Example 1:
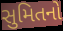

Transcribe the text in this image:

સુમિતનો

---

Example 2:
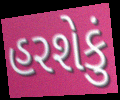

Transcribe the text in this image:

હરશેકું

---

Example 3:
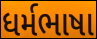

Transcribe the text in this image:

ધર્મભાષા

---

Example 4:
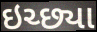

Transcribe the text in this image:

ઇચ્છ્યા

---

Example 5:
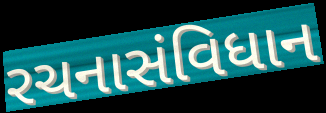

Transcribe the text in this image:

રચનાસંવિધાન